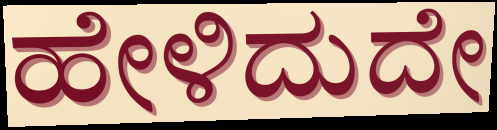
ಹೇಳಿದುದೇ